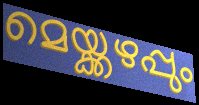
മെയ്ക്കഴപ്പും